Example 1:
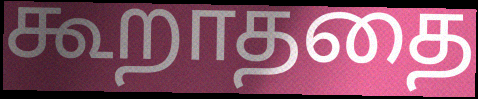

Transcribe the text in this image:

கூறாததை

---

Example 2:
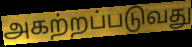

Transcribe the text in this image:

அகற்றப்படுவது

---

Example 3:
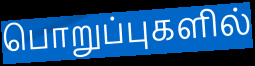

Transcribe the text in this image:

பொறுப்புகளில்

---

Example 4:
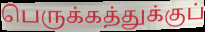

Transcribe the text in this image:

பெருக்கத்துக்குப்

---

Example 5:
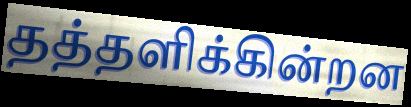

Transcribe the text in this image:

தத்தளிக்கின்றன